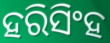
ହରିସିଂହ